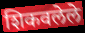
शिकवलेले